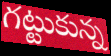
గట్టుకున్న